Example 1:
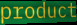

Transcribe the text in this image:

product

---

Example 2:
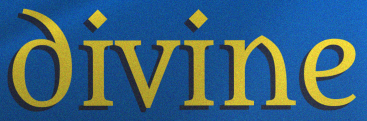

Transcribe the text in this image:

divine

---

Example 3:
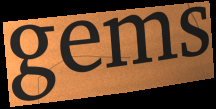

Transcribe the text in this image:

gems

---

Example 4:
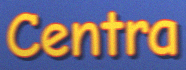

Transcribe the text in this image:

Centra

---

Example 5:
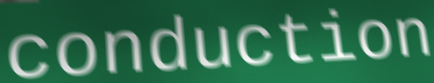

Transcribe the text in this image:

conduction